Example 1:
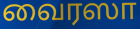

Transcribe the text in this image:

வைரஸா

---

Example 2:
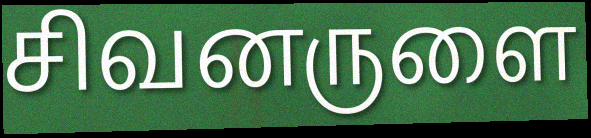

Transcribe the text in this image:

சிவனருளை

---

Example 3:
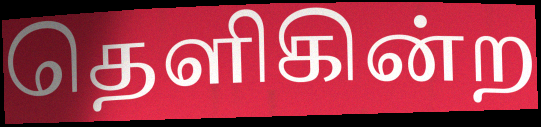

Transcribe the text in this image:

தெளிகின்ற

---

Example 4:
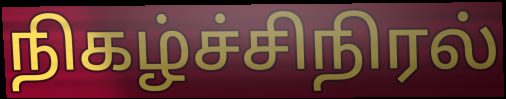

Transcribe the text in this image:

நிகழ்ச்சிநிரல்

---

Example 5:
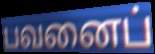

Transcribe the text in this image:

பவனைப்